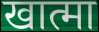
खात्मा